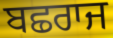
ਬਛਰਾਜ